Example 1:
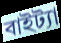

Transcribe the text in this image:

বাইট্যা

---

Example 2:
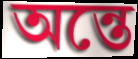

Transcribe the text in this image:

অন্তে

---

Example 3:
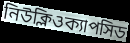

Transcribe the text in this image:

নিউক্লিওক্যাপসিড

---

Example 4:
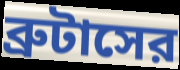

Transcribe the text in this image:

ব্রুটাসের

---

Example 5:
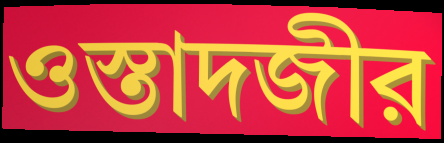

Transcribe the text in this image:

ওস্তাদজীর